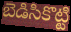
బెడిసికొట్టి